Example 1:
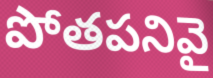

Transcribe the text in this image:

పోతపనివై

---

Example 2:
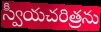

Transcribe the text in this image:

స్వీయచరిత్రను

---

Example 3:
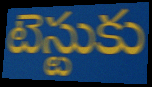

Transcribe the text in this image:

టెస్టుకు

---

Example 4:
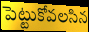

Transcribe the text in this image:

పెట్టుకోవలసిన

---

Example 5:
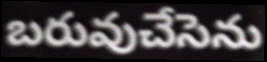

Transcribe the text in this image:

బరువుచేసెను